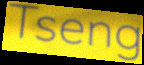
Tseng